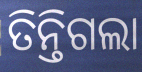
ତିନ୍ତିଗଲା